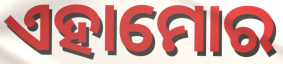
ଏହାମୋର